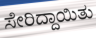
ಸೇರಿದ್ದಾಯಿತು